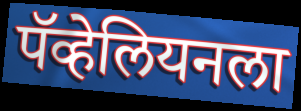
पॅव्हेलियनला